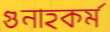
গুনাহকর্ম